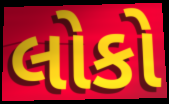
લોકો